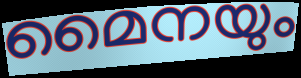
മൈനയും